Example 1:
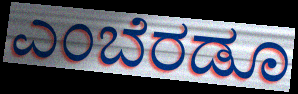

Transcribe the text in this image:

ಎಂಬೆರಡೂ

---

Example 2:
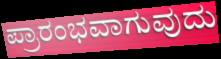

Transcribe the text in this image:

ಪ್ರಾರಂಭವಾಗುವುದು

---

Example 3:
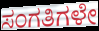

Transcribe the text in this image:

ಸಂಗತಿಗಳೇ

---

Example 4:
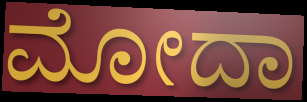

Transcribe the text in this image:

ಮೋದಾ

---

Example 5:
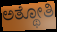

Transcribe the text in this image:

ಅತ್ಥೋತಿ